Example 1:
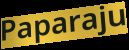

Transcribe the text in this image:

Paparaju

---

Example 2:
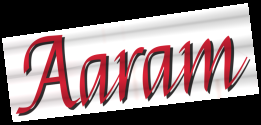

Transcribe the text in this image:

Aaram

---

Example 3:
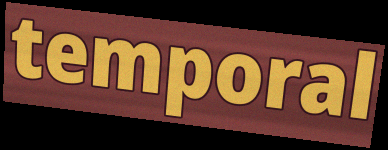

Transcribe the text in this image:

temporal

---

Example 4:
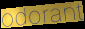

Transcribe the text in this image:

odorant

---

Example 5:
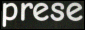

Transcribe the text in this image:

prese